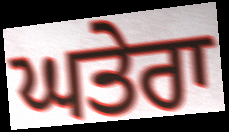
ਘਤੇਰਾ